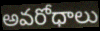
అవరోధాలు